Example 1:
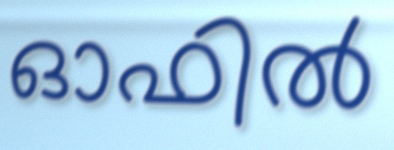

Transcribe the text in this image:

ഓഫിൽ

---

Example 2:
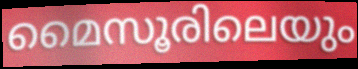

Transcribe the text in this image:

മൈസൂരിലെയും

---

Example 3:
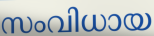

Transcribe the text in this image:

സംവിധായ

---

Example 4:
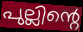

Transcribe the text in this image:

പുല്ലിന്റെ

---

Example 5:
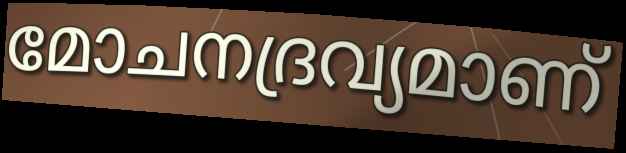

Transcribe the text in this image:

മോചനദ്രവ്യമാണ്